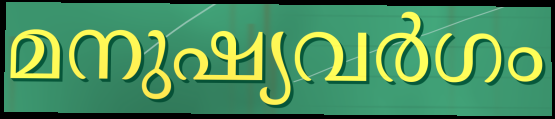
മനുഷ്യവർഗം